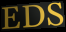
EDS